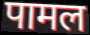
पामल